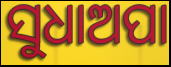
ସୁଧାଅପା